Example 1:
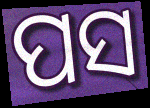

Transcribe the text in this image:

ପସ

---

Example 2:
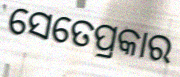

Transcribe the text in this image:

ସେତେପ୍ରକାର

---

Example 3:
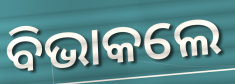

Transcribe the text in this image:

ବିଭାକଲେ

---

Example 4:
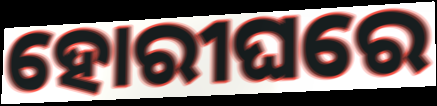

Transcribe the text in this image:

ହୋରୀଘରେ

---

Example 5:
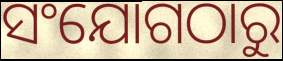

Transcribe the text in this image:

ସଂଯୋଗଠାରୁ